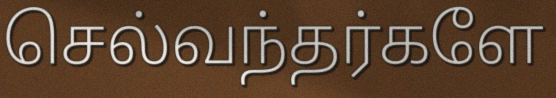
செல்வந்தர்களே